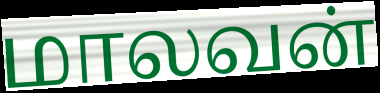
மாலவன்